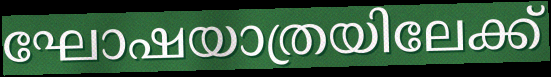
ഘോഷയാത്രയിലേക്ക്